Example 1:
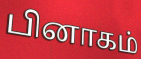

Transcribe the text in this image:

பினாகம்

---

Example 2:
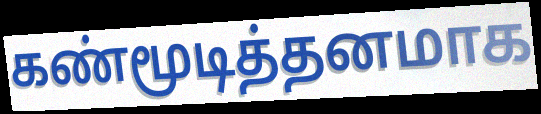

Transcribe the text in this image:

கண்மூடித்தனமாக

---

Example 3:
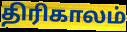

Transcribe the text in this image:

திரிகாலம்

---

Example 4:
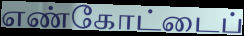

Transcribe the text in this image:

எண்கோட்டைப்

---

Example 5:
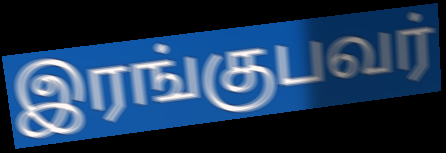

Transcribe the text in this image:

இரங்குபவர்